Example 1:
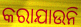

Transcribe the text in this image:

କରାଯାଉନି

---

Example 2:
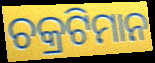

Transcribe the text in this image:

ଚକ୍ରଟିମାନ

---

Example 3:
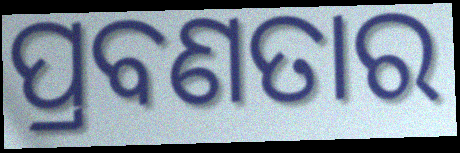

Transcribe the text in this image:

ପ୍ରବଣତାର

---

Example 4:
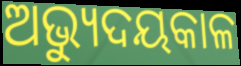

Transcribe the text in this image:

ଅଭ୍ୟୁଦୟକାଳ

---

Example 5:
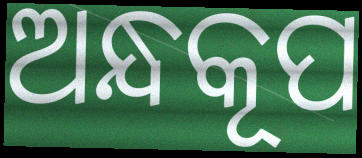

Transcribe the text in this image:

ଅନ୍ଧକୂପ